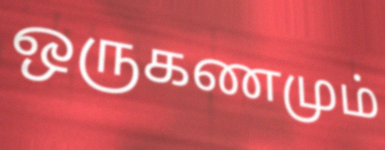
ஒருகணமும்